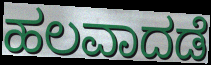
ಹಲವಾದಡೆ